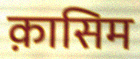
क़ासिम